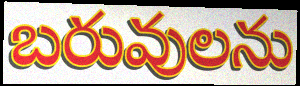
బరువులను